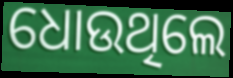
ଧୋଉଥିଲେ